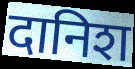
दानिश